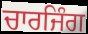
ਚਾਰਜਿੰਗ